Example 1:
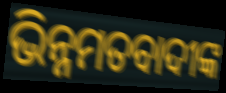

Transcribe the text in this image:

ଭିନ୍ନମତବାଦୀଙ୍କ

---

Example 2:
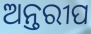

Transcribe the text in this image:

ଅନ୍ତରୀପ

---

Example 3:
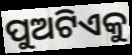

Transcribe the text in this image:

ପୁଅଟିଏକୁ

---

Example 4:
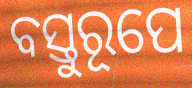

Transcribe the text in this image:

ବସ୍ତୁରୂପେ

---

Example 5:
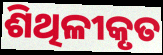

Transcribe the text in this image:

ଶିଥିଳୀକୃତ